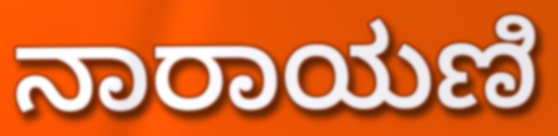
ನಾರಾಯಣಿ